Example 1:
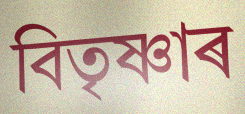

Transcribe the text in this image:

বিতৃষ্ণাৰ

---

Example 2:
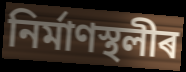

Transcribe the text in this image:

নিৰ্মাণস্থলীৰ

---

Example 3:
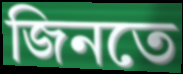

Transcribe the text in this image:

জিনতে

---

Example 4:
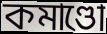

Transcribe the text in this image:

কমাণ্ডো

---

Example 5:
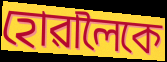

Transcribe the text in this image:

হোৱালৈকে